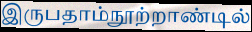
இருபதாம்நூற்றாண்டில்